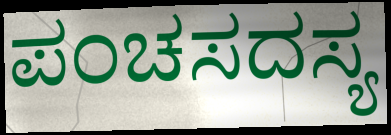
ಪಂಚಸದಸ್ಯ